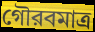
গৌরবমাত্র